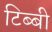
टिब्बी